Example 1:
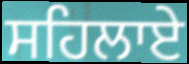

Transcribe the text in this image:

ਸਹਿਲਾਏ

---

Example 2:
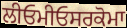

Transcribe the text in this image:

ਲੀਓਮੀਓਸਰਕੋਮਾ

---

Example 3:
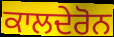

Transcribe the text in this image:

ਕਾਲਦੇਰੋਨ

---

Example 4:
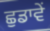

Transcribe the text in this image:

ਛੁਡਾਵੇਂ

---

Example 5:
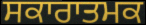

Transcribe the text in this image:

ਸਕਾਰਾਤਮਕ